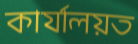
কাৰ্যালয়ত